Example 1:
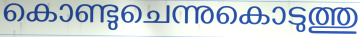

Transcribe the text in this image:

കൊണ്ടുചെന്നുകൊടുത്തു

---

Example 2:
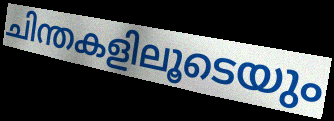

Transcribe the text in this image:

ചിന്തകളിലൂടെയും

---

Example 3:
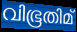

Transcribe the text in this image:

വിഭൂതിമ്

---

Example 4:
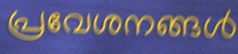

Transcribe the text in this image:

പ്രവേശനങ്ങൾ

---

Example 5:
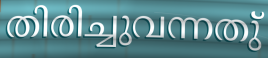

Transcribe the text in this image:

തിരിച്ചുവന്നതു്